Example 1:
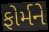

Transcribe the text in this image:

ફોર્મને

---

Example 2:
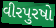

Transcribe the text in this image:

વીરપુરષો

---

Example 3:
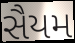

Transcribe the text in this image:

સૈયમ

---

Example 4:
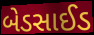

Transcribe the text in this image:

બેડસાઈડ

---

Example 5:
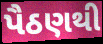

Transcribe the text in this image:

પૈઠણથી